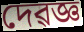
দেৱজ্ঞ